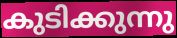
കുടിക്കുന്നു